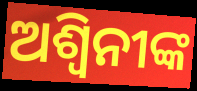
ଅଶ୍ୱିନୀଙ୍କ